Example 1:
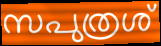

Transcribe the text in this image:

സപുത്രശ്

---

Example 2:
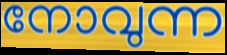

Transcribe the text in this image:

നോവുന്ന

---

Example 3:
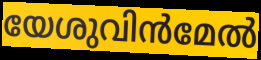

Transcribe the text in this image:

യേശുവിൻമേൽ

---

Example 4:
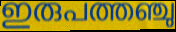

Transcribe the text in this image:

ഇരുപത്തഞ്ചു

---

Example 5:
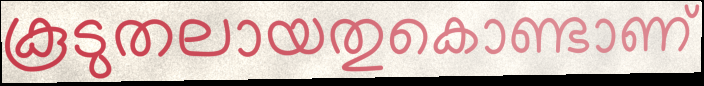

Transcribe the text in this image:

കൂടുതലായതുകൊണ്ടാണ്